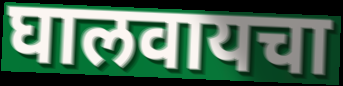
घालवायचा